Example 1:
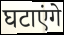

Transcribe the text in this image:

घटाएंगे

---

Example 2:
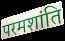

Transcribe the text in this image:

परमशांति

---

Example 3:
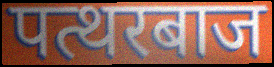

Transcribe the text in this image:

पत्थरबाज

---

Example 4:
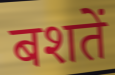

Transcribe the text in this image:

बशतें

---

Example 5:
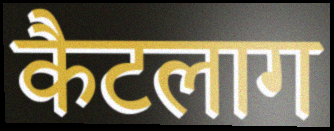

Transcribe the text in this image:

कैटलाग